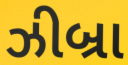
ઝીબ્રા